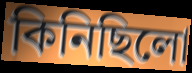
কিনিছিলো